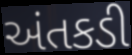
અંતકડી